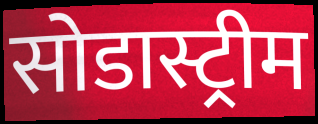
सोडास्ट्रीम